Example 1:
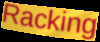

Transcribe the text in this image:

Racking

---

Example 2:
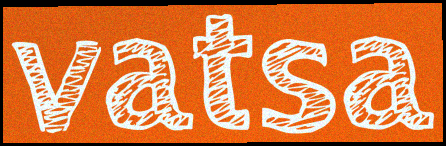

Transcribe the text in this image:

vatsa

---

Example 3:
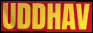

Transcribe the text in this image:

UDDHAV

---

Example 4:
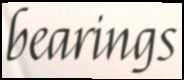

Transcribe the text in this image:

bearings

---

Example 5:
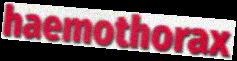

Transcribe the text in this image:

haemothorax